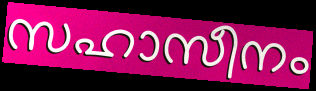
സഹാസീനം